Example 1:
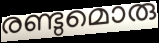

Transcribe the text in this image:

രണ്ടുമൊരു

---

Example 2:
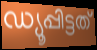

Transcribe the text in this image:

ഡ്യൂപ്പിട്ടത്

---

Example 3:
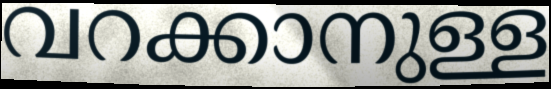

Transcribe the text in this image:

വറക്കാനുള്ള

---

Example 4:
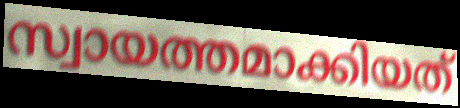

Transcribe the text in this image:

സ്വായത്തമാക്കിയത്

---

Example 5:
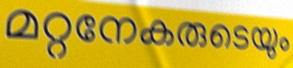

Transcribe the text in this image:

മറ്റനേകരുടെയും